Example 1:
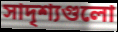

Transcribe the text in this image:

সাদৃশ্যগুলো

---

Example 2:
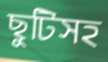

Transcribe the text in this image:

ছুটিসহ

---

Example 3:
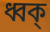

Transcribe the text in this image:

ধ্বক্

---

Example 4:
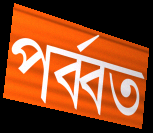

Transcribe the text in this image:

পর্ব্বত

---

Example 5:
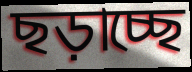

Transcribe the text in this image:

ছড়াচ্ছে